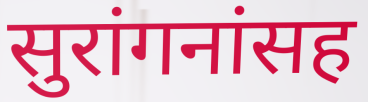
सुरांगनांसह